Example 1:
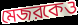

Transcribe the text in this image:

মেজরকেও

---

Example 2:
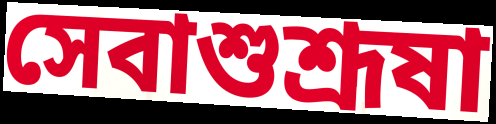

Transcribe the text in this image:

সেবাশুশ্রূষা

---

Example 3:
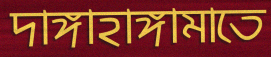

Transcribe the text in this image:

দাঙ্গাহাঙ্গামাতে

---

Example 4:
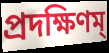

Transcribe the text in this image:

প্রদক্ষিণম্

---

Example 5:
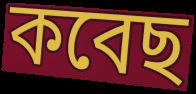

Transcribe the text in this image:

কবেছ